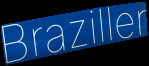
Braziller